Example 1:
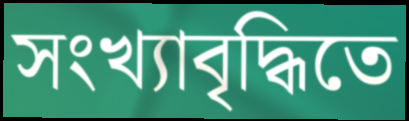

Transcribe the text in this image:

সংখ্যাবৃদ্ধিতে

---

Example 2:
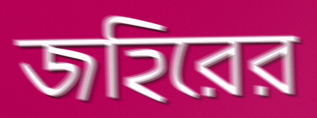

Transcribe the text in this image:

জহিরের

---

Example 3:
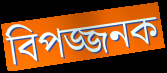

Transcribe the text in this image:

বিপজ্জনক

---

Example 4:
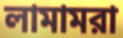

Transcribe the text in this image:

লামামরা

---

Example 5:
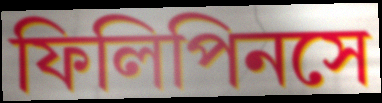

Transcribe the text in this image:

ফিলিপিনসে